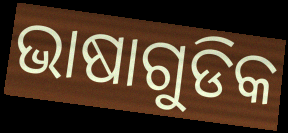
ଭାଷାଗୁଡିକ